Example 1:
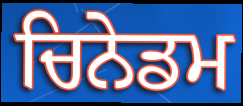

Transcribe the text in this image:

ਚਿਨੇਡਮ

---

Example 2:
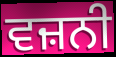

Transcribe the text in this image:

ਵਜ਼ਨੀ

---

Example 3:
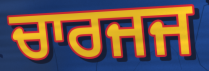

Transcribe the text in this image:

ਚਾਰਜਜ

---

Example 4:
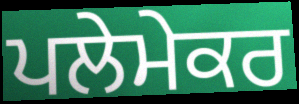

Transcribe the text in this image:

ਪਲੇਮੇਕਰ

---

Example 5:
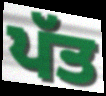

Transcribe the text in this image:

ਪੱਤ